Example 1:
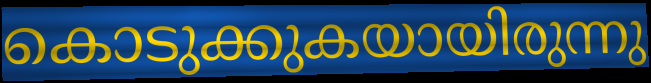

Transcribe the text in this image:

കൊടുക്കുകയായിരുന്നു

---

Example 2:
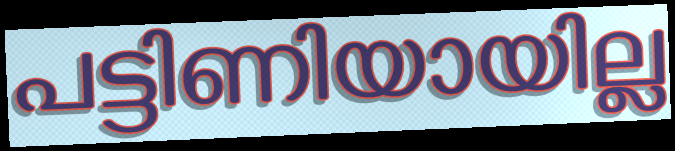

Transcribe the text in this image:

പട്ടിണിയായില്ല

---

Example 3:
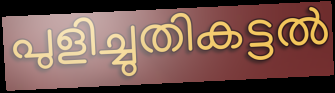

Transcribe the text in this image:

പുളിച്ചുതികട്ടൽ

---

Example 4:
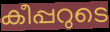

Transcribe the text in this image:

കീപ്പറുടെ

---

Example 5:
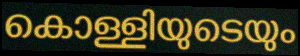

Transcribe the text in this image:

കൊള്ളിയുടെയും